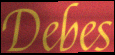
Debes